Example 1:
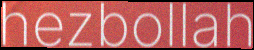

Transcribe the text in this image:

hezbollah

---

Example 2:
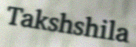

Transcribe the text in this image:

Takshshila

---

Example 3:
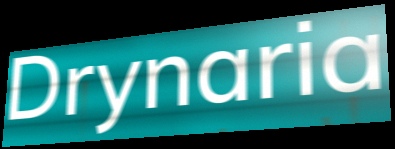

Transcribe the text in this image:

Drynaria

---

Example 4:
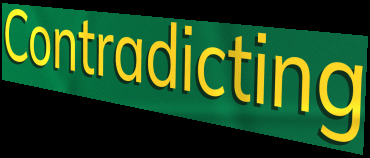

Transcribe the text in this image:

Contradicting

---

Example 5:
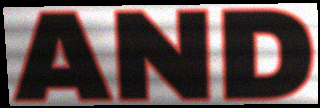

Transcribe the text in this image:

AND